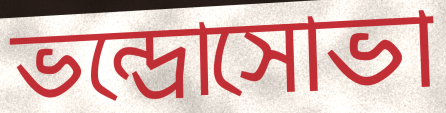
ভন্দ্রোসোভা